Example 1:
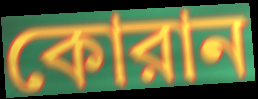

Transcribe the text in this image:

কোরান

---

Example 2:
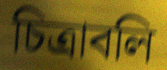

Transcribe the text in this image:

চিত্রাবলি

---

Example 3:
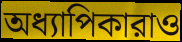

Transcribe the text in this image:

অধ্যাপিকারাও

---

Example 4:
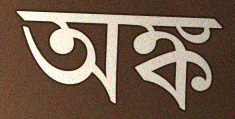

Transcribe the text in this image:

অঙ্ক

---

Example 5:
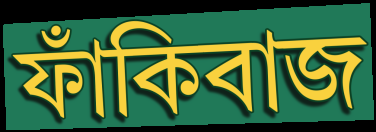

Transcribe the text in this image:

ফাঁকিবাজ